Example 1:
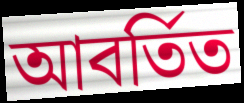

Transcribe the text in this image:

আবর্তিত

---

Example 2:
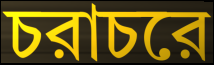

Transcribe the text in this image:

চরাচরে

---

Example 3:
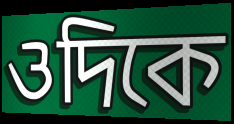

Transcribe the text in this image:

ওদিকে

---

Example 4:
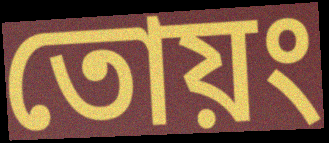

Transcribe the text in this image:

তোয়ং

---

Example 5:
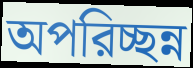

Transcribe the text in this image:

অপরিচ্ছন্ন